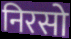
निरसो